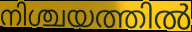
നിശ്ചയത്തിൽ